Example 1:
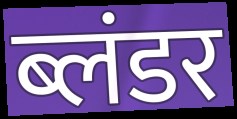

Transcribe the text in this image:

ब्लंडर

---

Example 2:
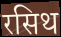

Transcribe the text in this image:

रसिथ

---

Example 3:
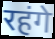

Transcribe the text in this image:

रहंगे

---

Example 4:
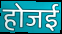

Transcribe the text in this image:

होजई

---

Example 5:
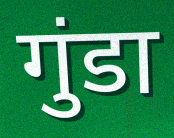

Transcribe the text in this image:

गुंडा